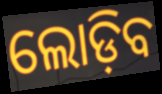
ଲୋଡ଼ିବ